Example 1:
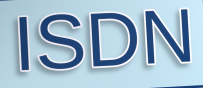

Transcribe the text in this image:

ISDN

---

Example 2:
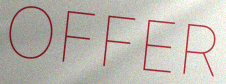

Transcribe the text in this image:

OFFER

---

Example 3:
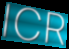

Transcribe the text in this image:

ICR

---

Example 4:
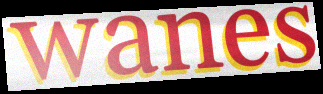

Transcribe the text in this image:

wanes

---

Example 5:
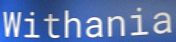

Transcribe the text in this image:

Withania